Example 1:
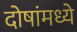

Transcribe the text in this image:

दोषांमध्ये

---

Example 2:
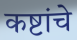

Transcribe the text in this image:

कष्टांचे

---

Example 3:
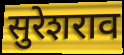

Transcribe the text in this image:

सुरेशराव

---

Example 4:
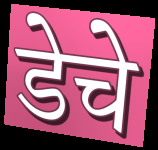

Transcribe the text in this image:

डेचे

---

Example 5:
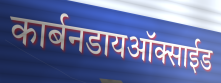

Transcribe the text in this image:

कार्बनडायऑक्साईड